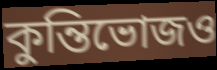
কুন্তিভোজও